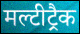
मल्टीट्रैक